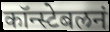
कॉन्स्टेबलनं